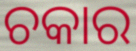
ଚକାର